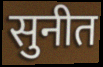
सुनीत